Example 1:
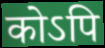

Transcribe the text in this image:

कोऽपि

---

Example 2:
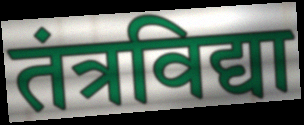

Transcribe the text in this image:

तंत्रविद्या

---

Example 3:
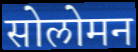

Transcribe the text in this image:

सोलोमन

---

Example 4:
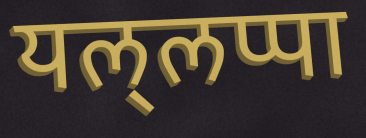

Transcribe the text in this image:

यल्लप्पा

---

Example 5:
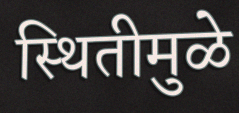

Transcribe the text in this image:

स्थितीमुळे